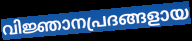
വിജ്ഞാനപ്രദങ്ങളായ